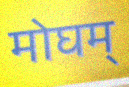
मोघम्